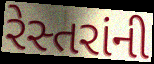
રેસ્તરાંની